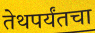
तेथपर्यंतचा